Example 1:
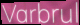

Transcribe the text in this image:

Varbrul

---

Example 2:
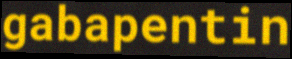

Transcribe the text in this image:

gabapentin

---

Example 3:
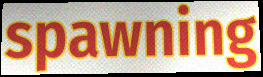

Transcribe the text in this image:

spawning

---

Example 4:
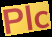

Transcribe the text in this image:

Plc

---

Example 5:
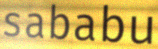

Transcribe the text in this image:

sababu